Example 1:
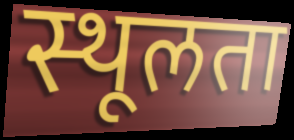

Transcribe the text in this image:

स्थूलता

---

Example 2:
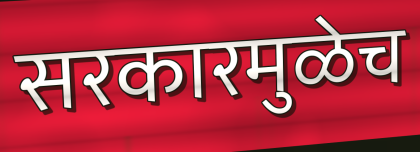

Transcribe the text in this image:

सरकारमुळेच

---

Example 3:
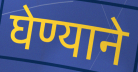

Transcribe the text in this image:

घेण्याने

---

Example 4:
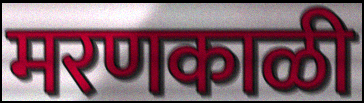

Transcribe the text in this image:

मरणकाळी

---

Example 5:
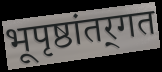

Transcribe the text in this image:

भूपृष्ठांतर्गत